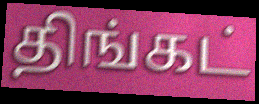
திங்கட்